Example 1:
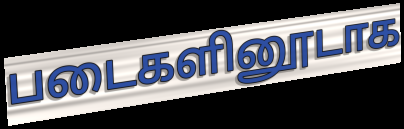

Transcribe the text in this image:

படைகளினூடாக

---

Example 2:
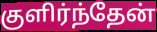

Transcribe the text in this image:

குளிர்ந்தேன்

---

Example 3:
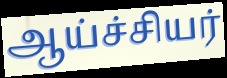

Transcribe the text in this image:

ஆய்ச்சியர்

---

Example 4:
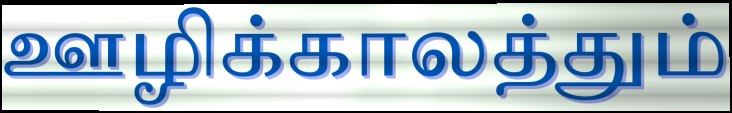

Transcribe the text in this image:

ஊழிக்காலத்தும்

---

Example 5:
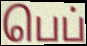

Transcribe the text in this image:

பெப்